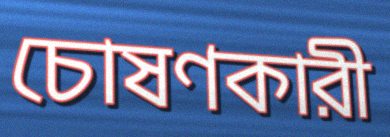
চোষণকারী